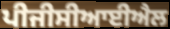
ਪੀਜੀਸੀਆਈਐਲ